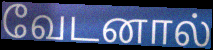
வேடனால்